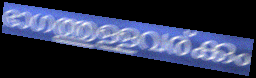
ഭാഗത്തുള്ളവര്ക്കും